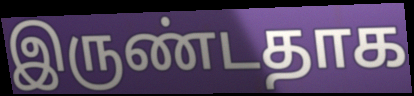
இருண்டதாக